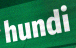
hundi